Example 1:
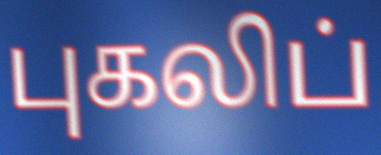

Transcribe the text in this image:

புகலிப்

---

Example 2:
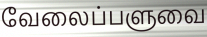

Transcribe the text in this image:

வேலைப்பளுவை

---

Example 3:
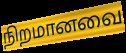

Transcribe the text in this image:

நிறமானவை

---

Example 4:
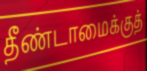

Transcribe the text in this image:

தீண்டாமைக்குத்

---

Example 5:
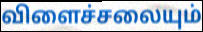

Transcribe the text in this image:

விளைச்சலையும்